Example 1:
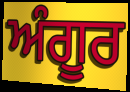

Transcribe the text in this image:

ਅੰਗੂਰ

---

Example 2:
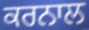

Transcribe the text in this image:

ਕਰਨਾਲ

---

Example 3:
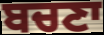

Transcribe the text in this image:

ਬਚਣਾ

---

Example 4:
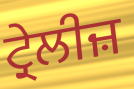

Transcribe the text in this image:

ਟ੍ਰੇਲੀਜ਼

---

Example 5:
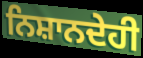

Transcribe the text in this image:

ਨਿਸ਼ਾਨਦੇਹੀ